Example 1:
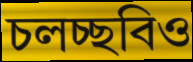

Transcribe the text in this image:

চলচ্ছবিও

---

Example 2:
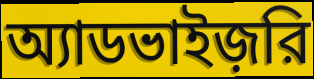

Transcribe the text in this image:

অ্যাডভাইজ়রি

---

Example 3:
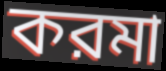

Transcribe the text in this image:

করমা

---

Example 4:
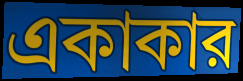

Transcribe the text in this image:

একাকার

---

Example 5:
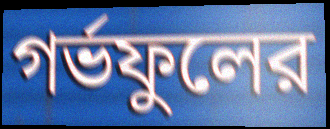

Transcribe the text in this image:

গর্ভফুলের